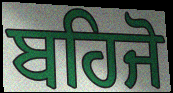
ਬਹਿਜੋ